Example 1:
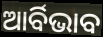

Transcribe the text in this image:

ଆର୍ବିଭାବ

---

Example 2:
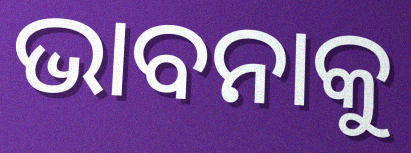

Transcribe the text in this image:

ଭାବନାକୁ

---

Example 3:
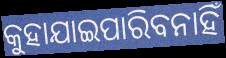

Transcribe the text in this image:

କୁହାଯାଇପାରିବନାହିଁ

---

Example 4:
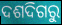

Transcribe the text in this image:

ଦଶଦିଗରୁ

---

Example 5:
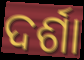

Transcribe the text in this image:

ଦର୍ଶା